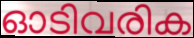
ഓടിവരിക